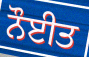
ਨੌਈਤ